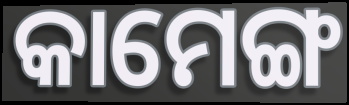
କାମେଙ୍ଗ